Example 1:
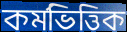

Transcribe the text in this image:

কর্মভিত্তিক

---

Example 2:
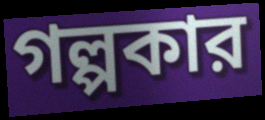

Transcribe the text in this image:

গল্পকার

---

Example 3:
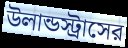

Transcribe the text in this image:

উলান্ডস্ট্রাসের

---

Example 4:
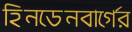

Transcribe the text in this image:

হিনডেনবার্গের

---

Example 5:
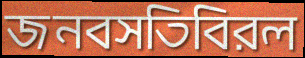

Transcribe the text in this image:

জনবসতিবিরল